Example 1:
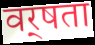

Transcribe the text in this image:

वर्षता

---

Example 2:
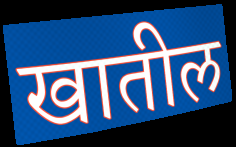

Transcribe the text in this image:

खातील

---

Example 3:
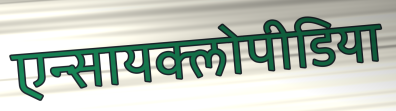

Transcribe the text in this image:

एन्सायक्लोपीडिया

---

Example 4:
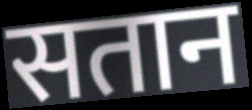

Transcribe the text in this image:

सतान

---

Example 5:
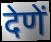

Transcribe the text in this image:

देणें